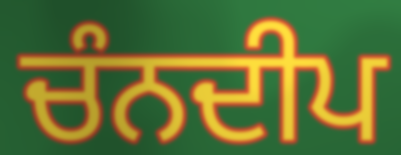
ਚੰਨਦੀਪ